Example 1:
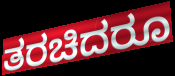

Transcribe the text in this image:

ತರಚಿದರೂ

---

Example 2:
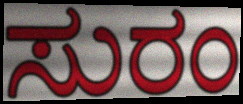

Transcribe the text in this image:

ಸುರಂ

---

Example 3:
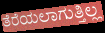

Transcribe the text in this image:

ತೆರೆಯಲಾಗುತ್ತಿಲ್ಲ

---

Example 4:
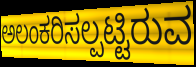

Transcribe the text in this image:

ಅಲಂಕರಿಸಲ್ಪಟ್ಟಿರುವ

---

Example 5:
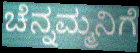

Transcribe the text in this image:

ಚೆನ್ನಮ್ಮನಿಗೆ